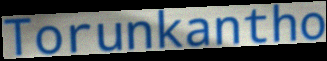
Torunkantho